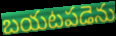
బయటపడెను